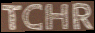
TCHR